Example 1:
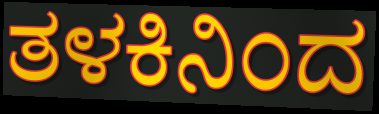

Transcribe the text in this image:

ತಳಕಿನಿಂದ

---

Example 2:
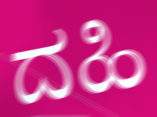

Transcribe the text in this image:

ದಹಿ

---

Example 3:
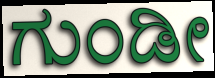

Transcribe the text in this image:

ಗುಂಡೀ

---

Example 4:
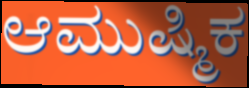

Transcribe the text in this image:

ಆಮುಷ್ಮಿಕ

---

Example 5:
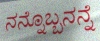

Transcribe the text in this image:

ನನ್ನೊಬ್ಬನನ್ನೆ